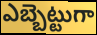
ఎబ్బెట్టుగా